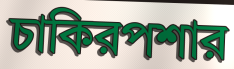
চাকিরপশার